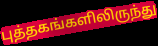
புத்தகங்களிலிருந்து